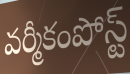
వర్మీకంపోస్ట్